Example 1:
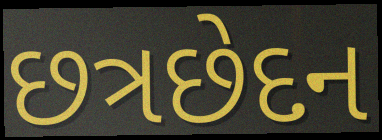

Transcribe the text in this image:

છત્રછેદન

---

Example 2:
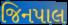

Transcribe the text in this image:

જિનપાલ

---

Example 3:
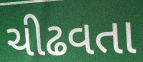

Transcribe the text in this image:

ચીઢવતા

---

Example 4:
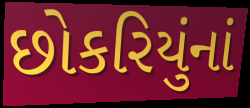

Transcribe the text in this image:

છોકરિયુંનાં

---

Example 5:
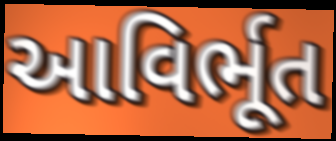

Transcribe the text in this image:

આવિર્ભૂત